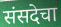
संसदेचा